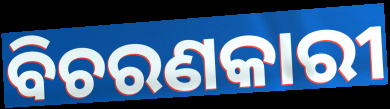
ବିଚରଣକାରୀ